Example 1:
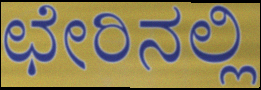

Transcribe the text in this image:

ಛೇರಿನಲ್ಲಿ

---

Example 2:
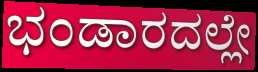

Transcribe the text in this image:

ಭಂಡಾರದಲ್ಲೇ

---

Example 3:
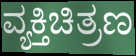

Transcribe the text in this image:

ವ್ಯಕ್ತಿಚಿತ್ರಣ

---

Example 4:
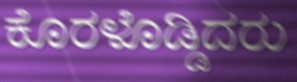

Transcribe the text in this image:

ಕೊರಳೊಡ್ಡಿದರು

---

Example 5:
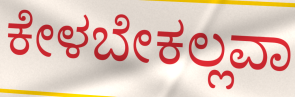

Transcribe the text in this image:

ಕೇಳಬೇಕಲ್ಲವಾ